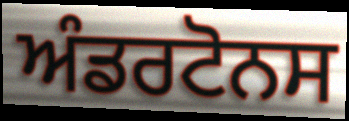
ਅੰਡਰਟੋਨਸ